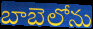
బాబెలోను